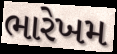
ભારેખમ